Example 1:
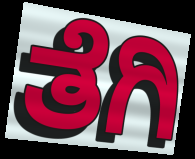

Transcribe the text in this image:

ತೆಗಿ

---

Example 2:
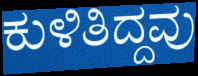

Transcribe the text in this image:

ಕುಳಿತಿದ್ದವು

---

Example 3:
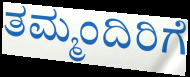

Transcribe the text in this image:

ತಮ್ಮಂದಿರಿಗೆ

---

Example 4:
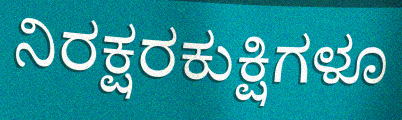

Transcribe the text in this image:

ನಿರಕ್ಷರಕುಕ್ಷಿಗಳೂ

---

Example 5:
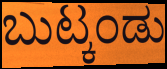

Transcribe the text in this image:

ಬುಟ್ಕಂಡು